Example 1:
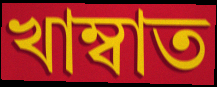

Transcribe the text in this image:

খাম্বাত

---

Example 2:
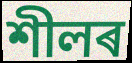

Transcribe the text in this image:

শীলৰ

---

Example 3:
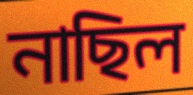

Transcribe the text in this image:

নাছিল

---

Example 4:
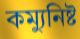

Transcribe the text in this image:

কম্যুনিষ্ট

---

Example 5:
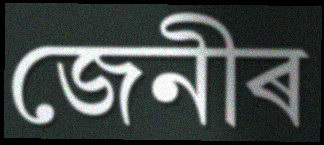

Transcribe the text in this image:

জেনীৰ